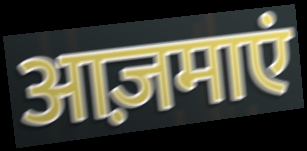
आज़माएं